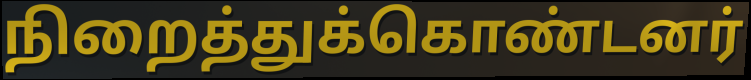
நிறைத்துக்கொண்டனர்